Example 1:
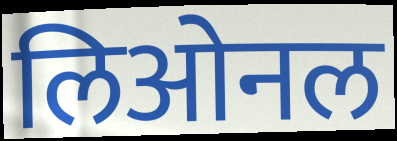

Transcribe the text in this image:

लिओनल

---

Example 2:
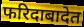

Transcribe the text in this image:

फरिदाबादेत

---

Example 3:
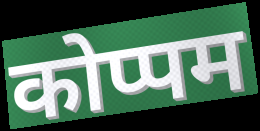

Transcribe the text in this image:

कोप्पम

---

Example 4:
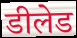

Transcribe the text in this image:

डीलेड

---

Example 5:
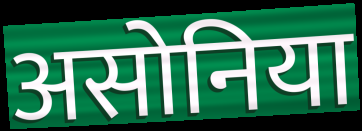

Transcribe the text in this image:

असोनिया